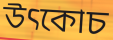
উৎকোচ